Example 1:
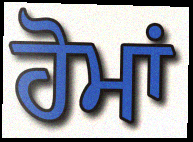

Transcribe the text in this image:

ਹੋਮਾਂ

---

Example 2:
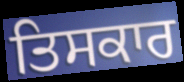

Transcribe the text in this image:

ਤਿਸਕਾਰ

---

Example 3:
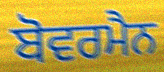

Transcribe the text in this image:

ਬੋਵਰਮੈਨ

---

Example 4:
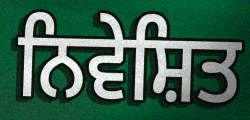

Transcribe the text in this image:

ਨਿਵੇਸ਼ਿਤ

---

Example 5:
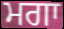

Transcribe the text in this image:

ਮਗਾ